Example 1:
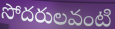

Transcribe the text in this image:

సోదరులవంటి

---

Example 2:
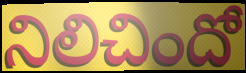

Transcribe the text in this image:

నిలిచిందో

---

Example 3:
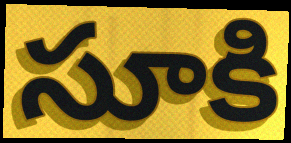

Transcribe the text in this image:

సూకి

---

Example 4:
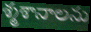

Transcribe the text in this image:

శ్మశానాలను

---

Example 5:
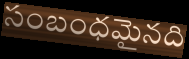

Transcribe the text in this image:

సంబంధమైనది